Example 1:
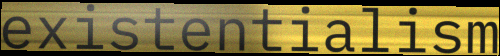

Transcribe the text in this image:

existentialism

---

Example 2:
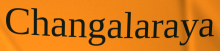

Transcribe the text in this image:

Changalaraya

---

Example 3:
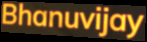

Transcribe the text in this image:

Bhanuvijay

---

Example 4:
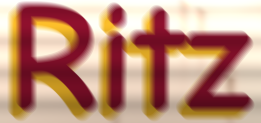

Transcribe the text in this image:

Ritz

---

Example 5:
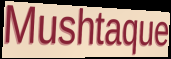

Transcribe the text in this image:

Mushtaque